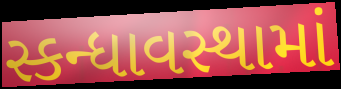
સ્કન્ધાવસ્થામાં